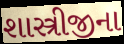
શાસ્ત્રીજીના